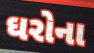
ઘરોના